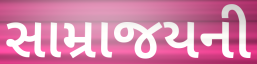
સામ્રાજયની